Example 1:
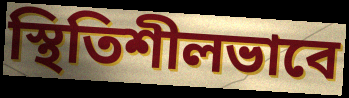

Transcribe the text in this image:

স্থিতিশীলভাবে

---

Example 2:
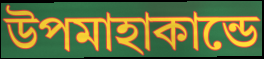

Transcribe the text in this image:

উপমাহাকান্ডে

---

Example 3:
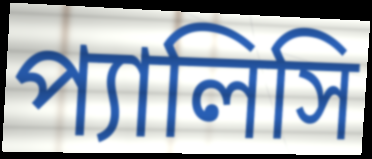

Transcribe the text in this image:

প্যালিসি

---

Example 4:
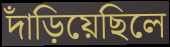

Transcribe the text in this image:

দাঁড়িয়েছিলে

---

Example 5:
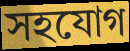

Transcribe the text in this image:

সহযোগ